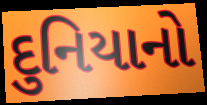
દુનિયાનો